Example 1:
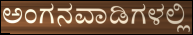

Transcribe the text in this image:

ಅಂಗನವಾಡಿಗಳಲ್ಲಿ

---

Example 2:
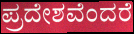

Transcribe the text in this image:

ಪ್ರದೇಶವೆಂದರೆ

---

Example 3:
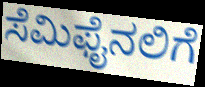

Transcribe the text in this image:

ಸೆಮಿಫೈನಲಿಗೆ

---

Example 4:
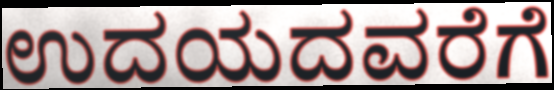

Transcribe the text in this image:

ಉದಯದವರೆಗೆ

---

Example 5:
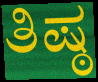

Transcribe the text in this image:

ತಿಷ್ಠ